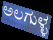
ಅಲಗುಳ್ಳ